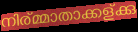
നിര്മ്മാതാക്കള്ക്കു